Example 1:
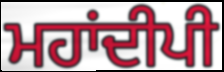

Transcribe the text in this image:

ਮਹਾਂਦੀਪੀ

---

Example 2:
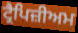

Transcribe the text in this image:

ਟ੍ਰੈਪਿਜ਼ੀਅਮ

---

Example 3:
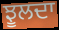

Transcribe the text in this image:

ਝੂਲਦਾ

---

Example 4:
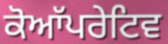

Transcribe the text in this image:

ਕੋਆੱਪਰੇਟਿਵ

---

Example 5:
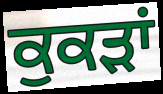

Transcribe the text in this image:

ਕੁਕੜਾਂ